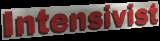
Intensivist